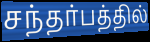
சந்தர்பத்தில்